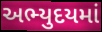
અભ્યુદયમાં